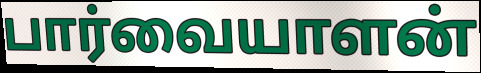
பார்வையாளன்